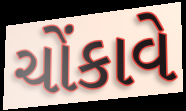
ચોંકાવે